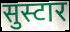
सुस्टार